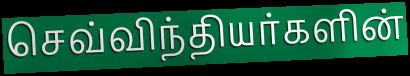
செவ்விந்தியர்களின்